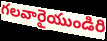
గలవారైయుండిరి